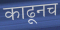
काढूनच